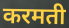
करमती